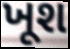
ખૂશ